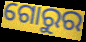
ଗୋରୁର